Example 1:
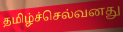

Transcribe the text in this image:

தமிழ்ச்செல்வனது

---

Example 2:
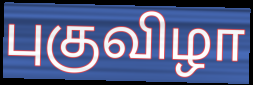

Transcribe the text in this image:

புகுவிழா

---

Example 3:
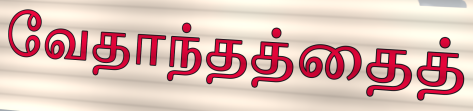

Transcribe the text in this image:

வேதாந்தத்தைத்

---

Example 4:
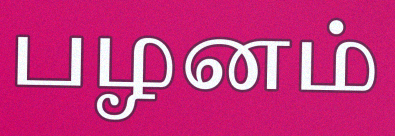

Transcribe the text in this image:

பழனம்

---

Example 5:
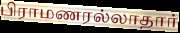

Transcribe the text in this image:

பிராமணரல்லாதார்